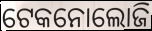
ଟେକନୋଲୋଜି